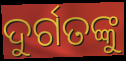
ଦୁର୍ଗତଙ୍କୁ